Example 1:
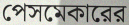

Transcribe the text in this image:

পেসমেকারের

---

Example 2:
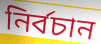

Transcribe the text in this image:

নির্বচান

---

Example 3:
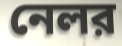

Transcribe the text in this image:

নেলর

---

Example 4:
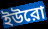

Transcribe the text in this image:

ইউরো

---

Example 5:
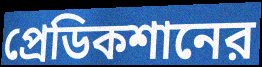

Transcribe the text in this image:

প্রেডিকশানের